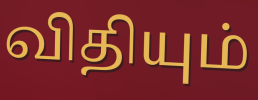
விதியும்